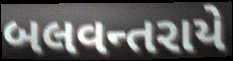
બલવન્તરાયે